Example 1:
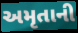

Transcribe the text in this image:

અમૃતાની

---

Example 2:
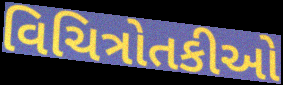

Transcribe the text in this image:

વિચિત્રોતકીઓ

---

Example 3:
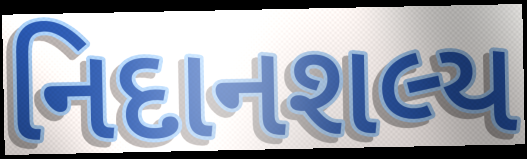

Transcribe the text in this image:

નિદાનશલ્ય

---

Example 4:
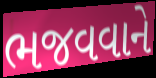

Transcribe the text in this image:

ભજવવાને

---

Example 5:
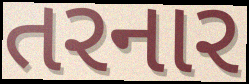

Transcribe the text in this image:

તરનાર